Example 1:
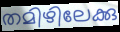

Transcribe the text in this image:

തമിഴിലേക്കു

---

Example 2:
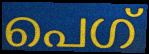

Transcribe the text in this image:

പെഗ്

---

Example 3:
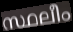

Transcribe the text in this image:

സ്ഥലീം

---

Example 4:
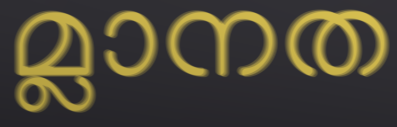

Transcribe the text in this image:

മ്ലാനത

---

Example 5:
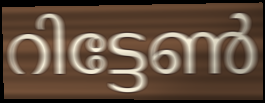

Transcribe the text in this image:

റിട്ടേൺ